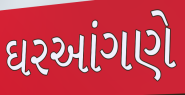
ઘરઆંગણે